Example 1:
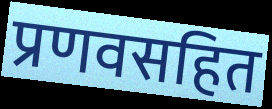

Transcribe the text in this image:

प्रणवसहित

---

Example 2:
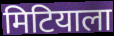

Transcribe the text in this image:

मिटियाला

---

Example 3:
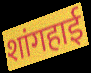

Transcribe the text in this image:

शांगहाई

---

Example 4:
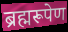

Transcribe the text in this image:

ब्रह्मरूपेण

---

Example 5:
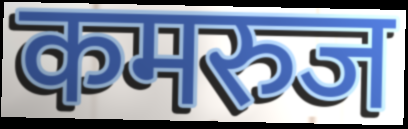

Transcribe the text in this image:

कमरुज